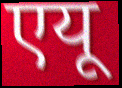
एयू